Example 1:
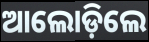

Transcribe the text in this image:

ଆଲୋଡ଼ିଲେ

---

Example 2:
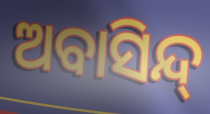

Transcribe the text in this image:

ଅବାସିନ୍ଦ୍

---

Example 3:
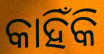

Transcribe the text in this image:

କାହିଁକି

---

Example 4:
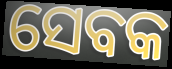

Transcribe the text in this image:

ସେବକ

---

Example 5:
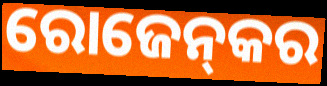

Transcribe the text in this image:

ରୋଜେନ୍‌କର